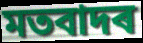
মতবাদৰ